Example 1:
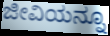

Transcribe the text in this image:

ಜೀವಿಯನ್ನೂ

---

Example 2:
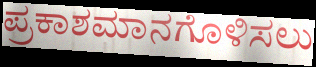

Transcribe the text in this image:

ಪ್ರಕಾಶಮಾನಗೊಳಿಸಲು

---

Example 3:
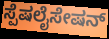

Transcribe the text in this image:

ಸ್ಪೆಷಲೈಸೇಷನ್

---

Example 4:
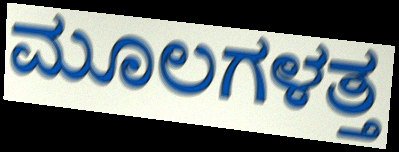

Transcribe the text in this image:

ಮೂಲಗಳತ್ತ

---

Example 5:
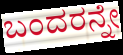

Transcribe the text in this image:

ಬಂದರನ್ನೇ